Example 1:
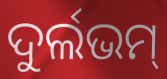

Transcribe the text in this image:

ଦୁର୍ଲଭମ୍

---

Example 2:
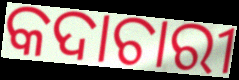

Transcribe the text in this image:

କଦାଚାରୀ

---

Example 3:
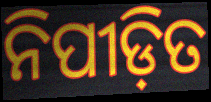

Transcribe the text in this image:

ନିପୀଡ଼ିତ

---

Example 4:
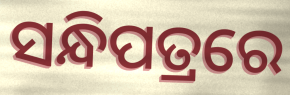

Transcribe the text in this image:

ସନ୍ଧିପତ୍ରରେ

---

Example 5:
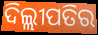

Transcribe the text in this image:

ଦିଲ୍ଲୀପତିର